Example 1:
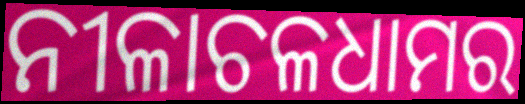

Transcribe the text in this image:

ନୀଳାଚଳଧାମର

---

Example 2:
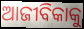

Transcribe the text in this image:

ଆଜୀବିକାକୁ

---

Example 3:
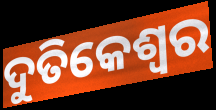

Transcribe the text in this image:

ଦୁତିକେଶ୍ୱର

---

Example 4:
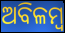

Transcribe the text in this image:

ଅବିଳମ୍ବ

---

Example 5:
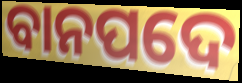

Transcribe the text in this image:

ବାନପଦେ